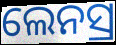
ଲେନସ୍ର